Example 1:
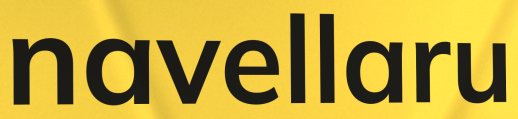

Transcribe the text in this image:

navellaru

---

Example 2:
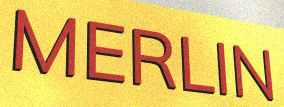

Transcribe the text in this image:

MERLIN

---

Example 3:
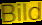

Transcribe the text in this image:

Bild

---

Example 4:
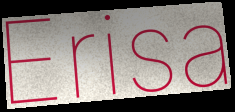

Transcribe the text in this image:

Erisa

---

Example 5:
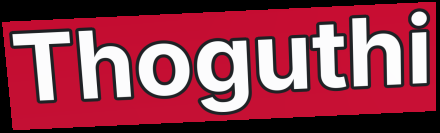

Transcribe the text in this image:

Thoguthi